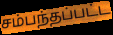
சம்பந்தப்பட்ட